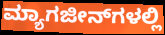
ಮ್ಯಾಗಜೀನ್‌ಗಳಲ್ಲಿ